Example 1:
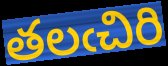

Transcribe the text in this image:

తలఁచిరి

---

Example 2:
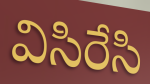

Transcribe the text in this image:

విసిరేసి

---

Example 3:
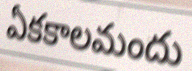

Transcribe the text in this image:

ఏకకాలమందు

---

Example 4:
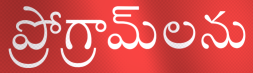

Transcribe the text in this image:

ప్రోగ్రామ్‌లను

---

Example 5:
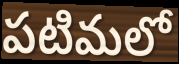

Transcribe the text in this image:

పటిమలో